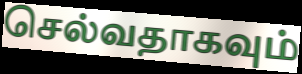
செல்வதாகவும்